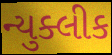
ન્યુક્લીક